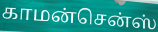
காமன்சென்ஸ்